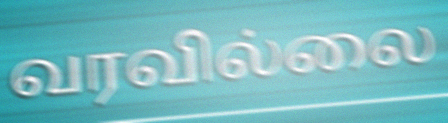
வரவில்லை